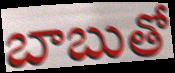
బాబుతో